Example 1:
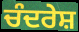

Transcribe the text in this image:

ਚੰਦਰੇਸ਼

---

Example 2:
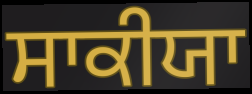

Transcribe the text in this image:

ਸਾਕੀਯਾ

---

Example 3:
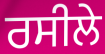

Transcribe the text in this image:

ਰਸੀਲੇ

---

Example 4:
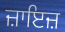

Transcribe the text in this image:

ਜ਼ਾਇਜ਼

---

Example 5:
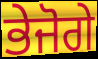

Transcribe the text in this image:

ਭੇਜੋਗੇ